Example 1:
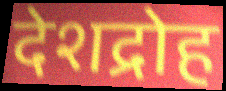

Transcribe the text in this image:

देशद्रोह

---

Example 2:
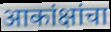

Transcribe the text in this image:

आकांक्षांचा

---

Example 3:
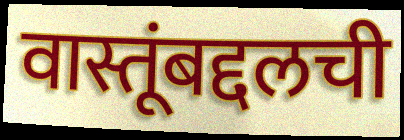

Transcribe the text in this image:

वास्तूंबद्दलची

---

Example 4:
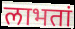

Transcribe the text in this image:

लाभतां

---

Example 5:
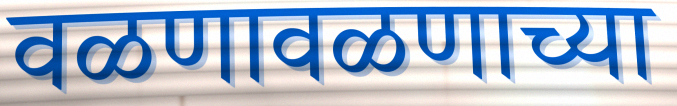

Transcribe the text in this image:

वळणावळणाच्या